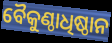
ବୈକୁଣ୍ଠାଧିଷ୍ଠାନ